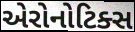
એરોનોટિક્સ